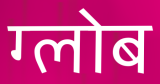
ग्लोब